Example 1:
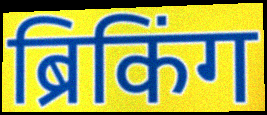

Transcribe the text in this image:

ब्रिकिंग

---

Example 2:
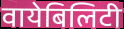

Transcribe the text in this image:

वायेबिलिटी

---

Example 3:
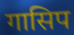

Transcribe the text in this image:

गासिप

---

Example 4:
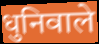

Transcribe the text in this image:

धुनिवाले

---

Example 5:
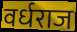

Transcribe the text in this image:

वर्धराज